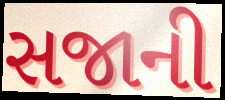
સજાની